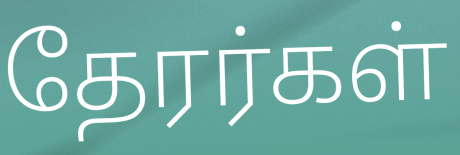
தேரர்கள்